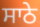
ਸਾਠੇ